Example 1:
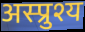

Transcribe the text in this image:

अस्प्रुश्य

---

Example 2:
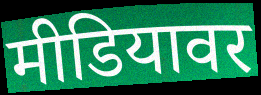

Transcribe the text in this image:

मीडियावर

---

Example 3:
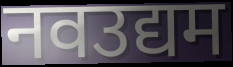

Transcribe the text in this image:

नवउद्यम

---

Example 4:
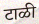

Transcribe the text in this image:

टाळी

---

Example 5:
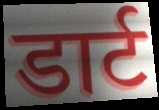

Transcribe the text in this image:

डार्ट